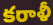
కరాళీ